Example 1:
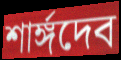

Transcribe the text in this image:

শার্ঙ্গদেব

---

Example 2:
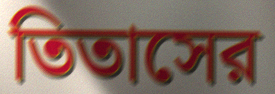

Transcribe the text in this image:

তিতাসের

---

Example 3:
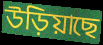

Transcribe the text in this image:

উড়িয়াছে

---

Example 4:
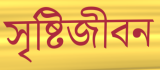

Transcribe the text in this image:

সৃষ্টিজীবন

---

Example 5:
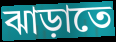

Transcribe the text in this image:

ঝাড়াতে